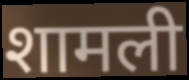
शामली